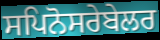
ਸਪਿਨੋਸਰੇਬੇਲਰ